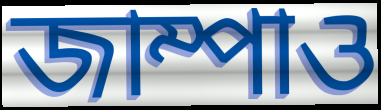
জাম্পাও